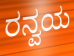
ರನ್ವಯ